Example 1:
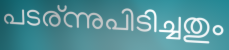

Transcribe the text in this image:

പടര്ന്നുപിടിച്ചതും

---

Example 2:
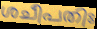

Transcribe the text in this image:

ശചീപതിഃ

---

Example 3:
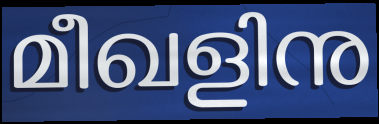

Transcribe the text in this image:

മീഖളിനു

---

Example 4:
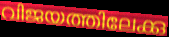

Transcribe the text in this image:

വിജയത്തിലേക്കു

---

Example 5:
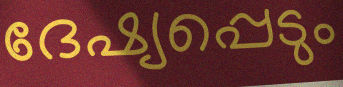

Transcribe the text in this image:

ദേഷ്യപ്പെടും